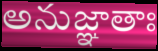
అనుజ్ఞాతాః